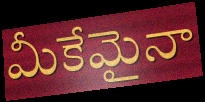
మీకేమైనా